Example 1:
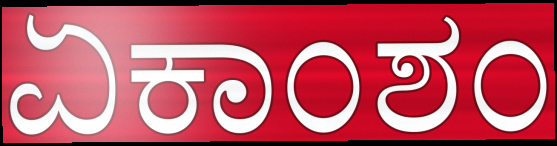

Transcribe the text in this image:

ಏಕಾಂಶಂ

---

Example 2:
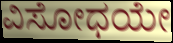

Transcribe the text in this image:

ವಿಸೋಧಯೇ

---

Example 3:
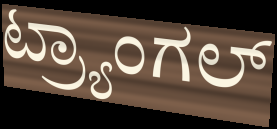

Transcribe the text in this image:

ಟ್ರ್ಯಾಂಗಲ್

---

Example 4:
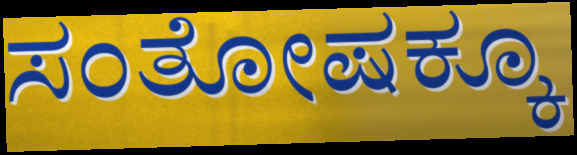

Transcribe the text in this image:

ಸಂತೋಷಕ್ಕೂ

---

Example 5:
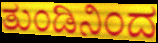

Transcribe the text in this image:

ತುಂಡಿನಿಂದ